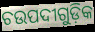
ଚଉପଦୀଗୁଡ଼ିକ